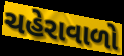
ચહેરાવાળો